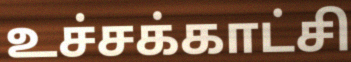
உச்சக்காட்சி